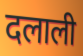
दलाली